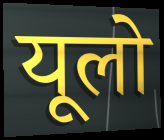
यूलो